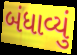
બંધાવ્યું